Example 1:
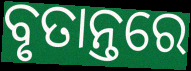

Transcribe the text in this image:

ବୃତାନ୍ତରେ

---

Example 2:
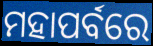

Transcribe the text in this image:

ମହାପର୍ବରେ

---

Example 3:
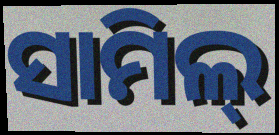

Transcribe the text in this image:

ସାମିଲ୍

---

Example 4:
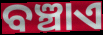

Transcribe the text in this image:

ବଞ୍ଚାଏ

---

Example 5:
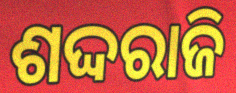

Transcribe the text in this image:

ଶଦ୍ଦରାଜି